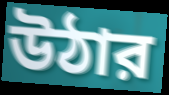
উঠার